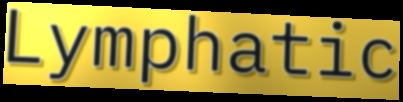
Lymphatic